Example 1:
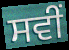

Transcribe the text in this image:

ਸਵੀਂ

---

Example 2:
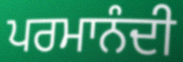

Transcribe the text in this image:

ਪਰਮਾਨੰਦੀ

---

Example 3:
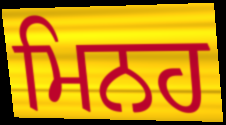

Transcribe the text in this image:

ਮਿਨਹ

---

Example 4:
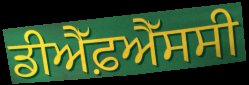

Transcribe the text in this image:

ਡੀਐੱਫ਼ਐੱਸਸੀ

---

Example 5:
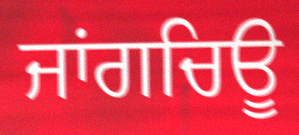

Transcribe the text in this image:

ਜਾਂਗਚਿਊ